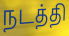
நடத்தி